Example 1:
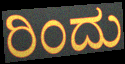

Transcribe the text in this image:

ರಿಂದು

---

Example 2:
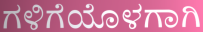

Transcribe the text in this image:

ಗಳಿಗೆಯೊಳಗಾಗಿ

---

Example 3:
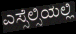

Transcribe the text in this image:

ಎಸ್ಸೆಲ್ಸಿಯಲ್ಲಿ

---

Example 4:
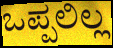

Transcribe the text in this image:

ಒಪ್ಪಲಿಲ್ಲ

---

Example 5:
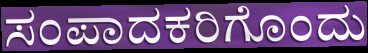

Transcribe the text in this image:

ಸಂಪಾದಕರಿಗೊಂದು